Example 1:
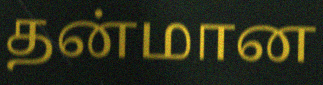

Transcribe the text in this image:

தன்மான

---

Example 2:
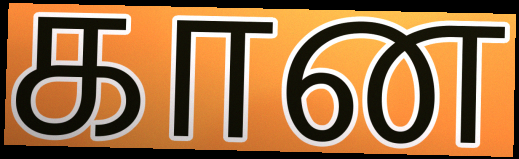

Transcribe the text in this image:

கான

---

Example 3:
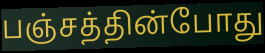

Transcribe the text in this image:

பஞ்சத்தின்போது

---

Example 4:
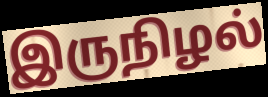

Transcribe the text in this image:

இருநிழல்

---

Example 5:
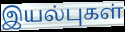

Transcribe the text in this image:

இயல்புகள்